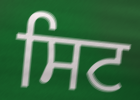
ਸਿਟ